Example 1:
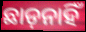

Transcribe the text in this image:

ଛାଡ଼ନାହିଁ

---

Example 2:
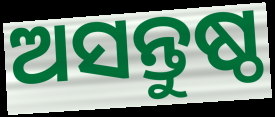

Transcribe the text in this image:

ଅସନ୍ତୁଷ୍ଠ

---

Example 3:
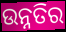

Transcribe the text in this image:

ଉନ୍ନତିର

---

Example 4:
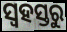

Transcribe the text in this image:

ସ୍ୱହସ୍ତରୁ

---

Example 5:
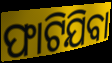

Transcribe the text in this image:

ଫାଟିଯିବା